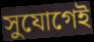
সুযোগেই